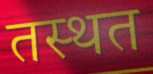
तस्थत